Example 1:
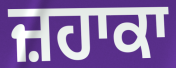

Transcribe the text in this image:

ਜ਼ਹਾਕਾ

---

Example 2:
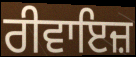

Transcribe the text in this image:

ਰੀਵਾਇਜ਼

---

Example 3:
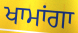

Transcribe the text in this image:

ਖਾਮਾਂਗਾ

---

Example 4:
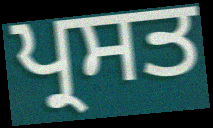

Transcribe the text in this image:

ਪ੍ਰਸਤ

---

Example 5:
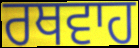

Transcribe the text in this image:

ਰਥਵਾਹ